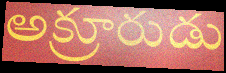
అక్రూరుడు